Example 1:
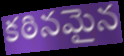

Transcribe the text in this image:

కఠినమైన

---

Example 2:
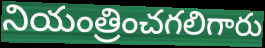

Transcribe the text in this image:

నియంత్రించగలిగారు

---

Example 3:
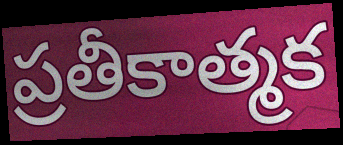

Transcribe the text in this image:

ప్రతీకాత్మక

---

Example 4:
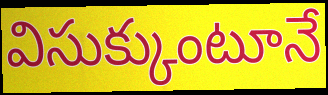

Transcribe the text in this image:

విసుక్కుంటూనే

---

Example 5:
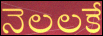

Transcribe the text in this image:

నెలలకే